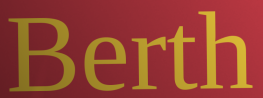
Berth